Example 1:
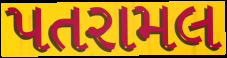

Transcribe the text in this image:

પતરામલ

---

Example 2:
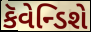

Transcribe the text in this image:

કૅવેન્ડિશે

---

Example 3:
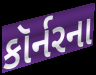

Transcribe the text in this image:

કૉર્નરના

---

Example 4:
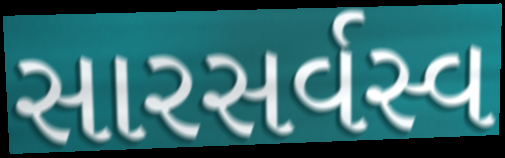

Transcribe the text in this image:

સારસર્વસ્વ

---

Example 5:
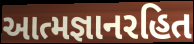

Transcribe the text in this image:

આત્મજ્ઞાનરહિત